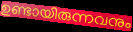
ഉണ്ടായിരുന്നവനും